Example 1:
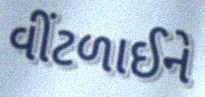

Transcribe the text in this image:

વીંટળાઈને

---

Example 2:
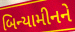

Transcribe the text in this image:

બિન્યામીનને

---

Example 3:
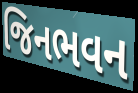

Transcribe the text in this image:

જિનભવન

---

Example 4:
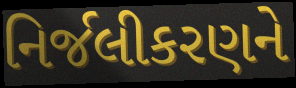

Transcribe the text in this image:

નિર્જલીકરણને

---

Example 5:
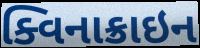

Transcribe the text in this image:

ક્વિનાક્રાઇન